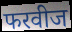
फरवीज